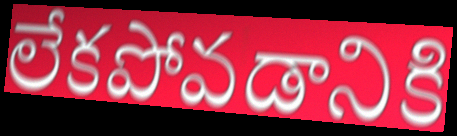
లేకపోవడానికి